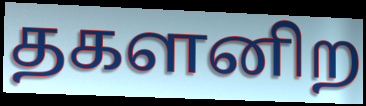
தகளனிற